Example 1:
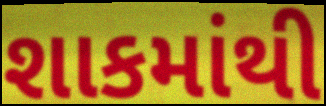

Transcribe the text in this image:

શાકમાંથી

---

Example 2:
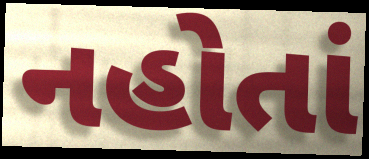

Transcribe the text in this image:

નહોતાં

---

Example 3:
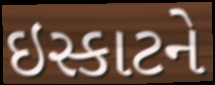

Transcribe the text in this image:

ઇસ્કાટને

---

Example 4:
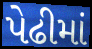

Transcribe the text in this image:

પેઢીમાં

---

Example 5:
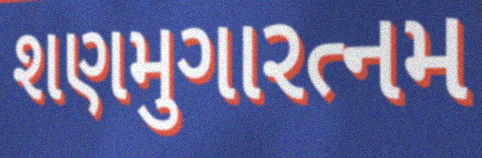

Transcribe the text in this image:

શણમુગારત્નમ